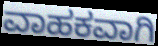
ವಾಹಕವಾಗಿ